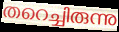
തറെച്ചിരുന്നു